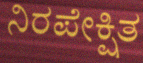
ನಿರಪೇಕ್ಷಿತ